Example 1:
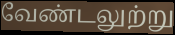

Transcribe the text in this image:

வேண்டலுற்று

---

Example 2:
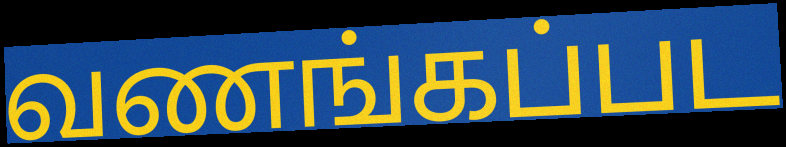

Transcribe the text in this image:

வணங்கப்பட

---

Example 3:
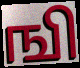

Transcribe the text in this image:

ஙி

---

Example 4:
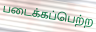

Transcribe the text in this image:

படைக்கப்பெற்ற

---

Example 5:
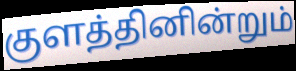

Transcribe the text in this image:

குளத்தினின்றும்